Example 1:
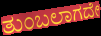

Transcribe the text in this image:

ತುಂಬಲಾಗದೇ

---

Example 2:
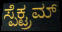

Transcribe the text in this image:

ಸ್ಪೆಕ್ಟ್ರಮ್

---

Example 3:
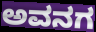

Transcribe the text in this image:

ಅವನಗ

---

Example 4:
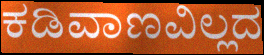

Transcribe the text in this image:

ಕಡಿವಾಣವಿಲ್ಲದ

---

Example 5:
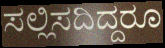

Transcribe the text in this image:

ಸಲ್ಲಿಸದಿದ್ದರೂ